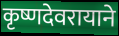
कृष्णदेवरायाने